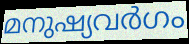
മനുഷ്യവർഗം